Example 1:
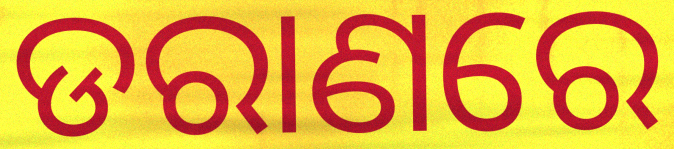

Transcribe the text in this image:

ଡରାଣରେ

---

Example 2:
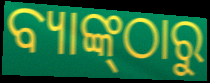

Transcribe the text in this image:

ବ୍ୟାଙ୍କ୍‌ଠାରୁ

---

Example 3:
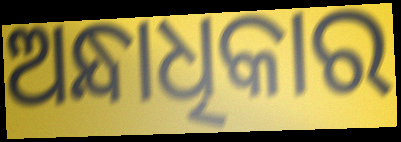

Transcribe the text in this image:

ଅନ୍ଧାଧିକାର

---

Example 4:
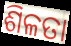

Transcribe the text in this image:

ଶିଳତା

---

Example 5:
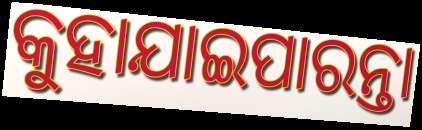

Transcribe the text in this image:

କୁହାଯାଇପାରନ୍ତା